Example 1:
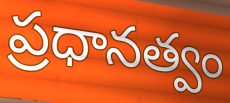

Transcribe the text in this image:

ప్రధానత్వం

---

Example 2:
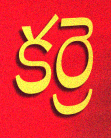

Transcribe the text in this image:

కర్రె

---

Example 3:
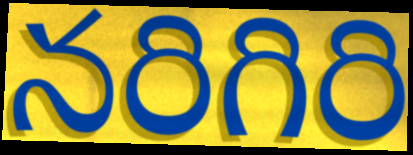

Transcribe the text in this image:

నరిగిరి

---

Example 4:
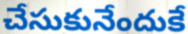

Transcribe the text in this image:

చేసుకునేందుకే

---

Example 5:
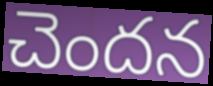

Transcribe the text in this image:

చెందన